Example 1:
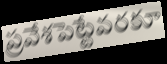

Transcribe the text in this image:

ప్రవేశపెట్టేవరకూ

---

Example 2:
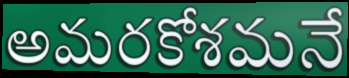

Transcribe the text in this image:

అమరకోశమనే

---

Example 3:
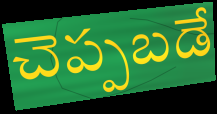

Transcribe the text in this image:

చెప్పబడే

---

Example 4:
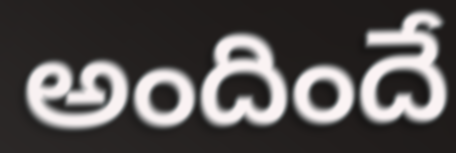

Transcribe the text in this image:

అందిందే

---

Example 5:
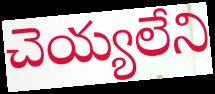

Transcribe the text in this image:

చెయ్యలేని